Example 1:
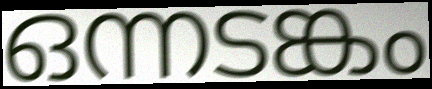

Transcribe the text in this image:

ഒന്നടങ്കം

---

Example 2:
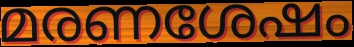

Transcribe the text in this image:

മരണശേഷം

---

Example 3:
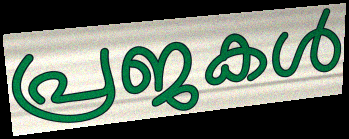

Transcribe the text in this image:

പ്രജകൾ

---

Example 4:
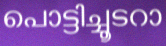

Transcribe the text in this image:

പൊട്ടിച്ചൂടറാ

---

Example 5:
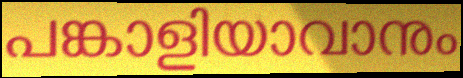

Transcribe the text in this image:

പങ്കാളിയാവാനും